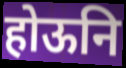
होऊनि